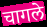
चागले